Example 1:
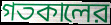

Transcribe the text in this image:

গতকালের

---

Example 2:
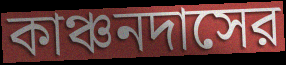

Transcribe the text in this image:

কাঞ্চনদাসের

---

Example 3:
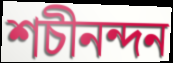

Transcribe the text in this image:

শচীনন্দন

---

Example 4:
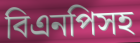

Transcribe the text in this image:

বিএনপিসহ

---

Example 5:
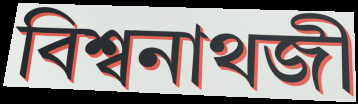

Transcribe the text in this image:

বিশ্বনাথজী